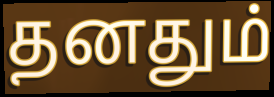
தனதும்